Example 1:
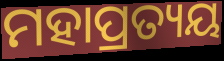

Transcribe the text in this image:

ମହାପ୍ରତ୍ୟୟ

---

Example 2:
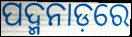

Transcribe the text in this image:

ପଦ୍ମନାଡ଼ରେ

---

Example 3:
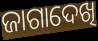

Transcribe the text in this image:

ଜାଗାଦେଖି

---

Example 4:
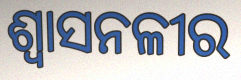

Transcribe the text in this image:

ଶ୍ୱାସନଳୀର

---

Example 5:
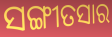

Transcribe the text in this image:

ସଙ୍ଗୀତସାର